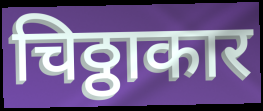
चिठ्ठाकार